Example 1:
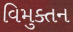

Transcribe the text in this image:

વિમુક્તન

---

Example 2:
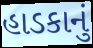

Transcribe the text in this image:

હાડકાનું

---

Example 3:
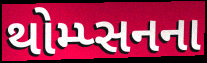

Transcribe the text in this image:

થોમ્પ્સનના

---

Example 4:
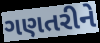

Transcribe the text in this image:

ગણતરીને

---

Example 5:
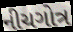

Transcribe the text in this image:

નીચગોત્ર